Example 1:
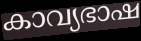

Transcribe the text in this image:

കാവ്യഭാഷ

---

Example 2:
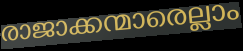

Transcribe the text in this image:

രാജാക്കന്മാരെല്ലാം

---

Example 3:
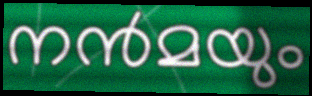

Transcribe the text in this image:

നൻമയും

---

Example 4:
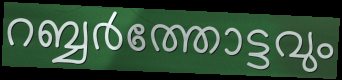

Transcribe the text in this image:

റബ്ബർത്തോട്ടവും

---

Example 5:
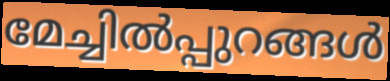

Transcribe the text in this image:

മേച്ചിൽപ്പുറങ്ങൾ